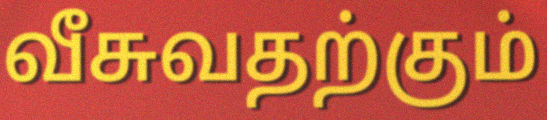
வீசுவதற்கும்